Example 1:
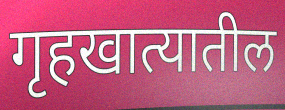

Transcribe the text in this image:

गृहखात्यातील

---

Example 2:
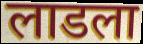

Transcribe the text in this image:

लाडला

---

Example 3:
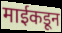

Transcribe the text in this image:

माईकडून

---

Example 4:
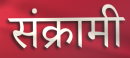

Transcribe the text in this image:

संक्रामी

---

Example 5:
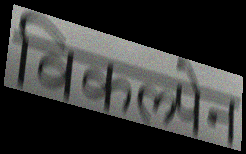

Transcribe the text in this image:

विकल्पेन